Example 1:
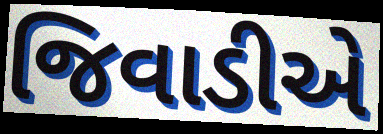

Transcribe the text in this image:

જિવાડીએ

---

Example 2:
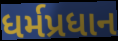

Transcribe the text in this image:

ધર્મપ્રધાન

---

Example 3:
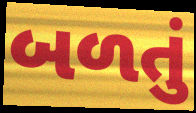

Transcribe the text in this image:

બળતું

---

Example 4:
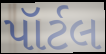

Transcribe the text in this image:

પૉર્ટલ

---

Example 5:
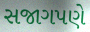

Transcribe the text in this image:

સજાગપણે